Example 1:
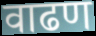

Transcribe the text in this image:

वाढण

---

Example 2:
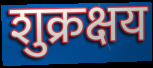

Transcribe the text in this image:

शुक्रक्षय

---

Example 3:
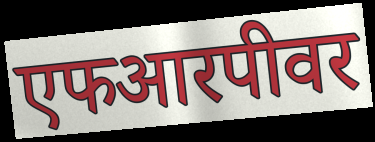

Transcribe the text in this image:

एफआरपीवर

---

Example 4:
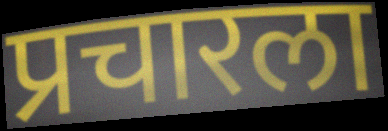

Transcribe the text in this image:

प्रचारला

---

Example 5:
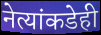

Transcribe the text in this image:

नेत्यांकडेही